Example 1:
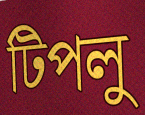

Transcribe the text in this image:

টিপলু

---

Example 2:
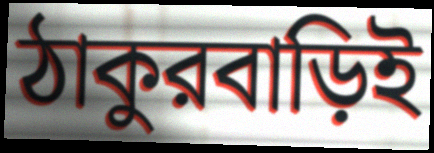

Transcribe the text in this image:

ঠাকুরবাড়িই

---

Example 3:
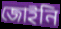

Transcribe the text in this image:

জোইনি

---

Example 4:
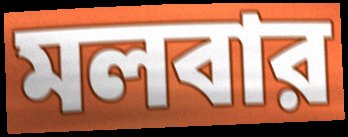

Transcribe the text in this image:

মলবার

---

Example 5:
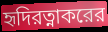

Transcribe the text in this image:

হৃদিরত্নাকরের